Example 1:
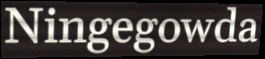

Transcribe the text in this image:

Ningegowda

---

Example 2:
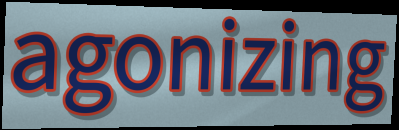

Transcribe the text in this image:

agonizing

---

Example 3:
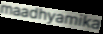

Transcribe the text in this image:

maadhyamika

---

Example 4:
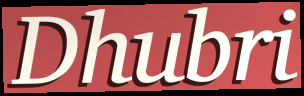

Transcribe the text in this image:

Dhubri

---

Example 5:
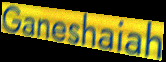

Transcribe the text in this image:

Ganeshaiah